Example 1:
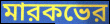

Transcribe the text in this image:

মারকভের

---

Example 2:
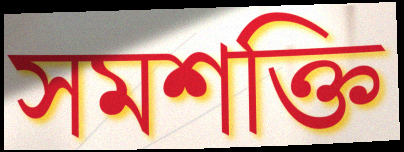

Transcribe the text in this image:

সমশক্তি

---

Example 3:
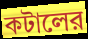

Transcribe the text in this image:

কটালের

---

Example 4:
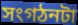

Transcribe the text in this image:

সংগঠনটা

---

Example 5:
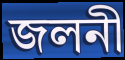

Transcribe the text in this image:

জলনী